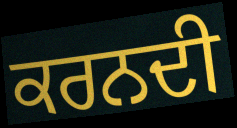
ਕਰਨਦੀ